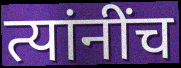
त्यांनींच